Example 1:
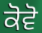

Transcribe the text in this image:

ਕੋਵੋ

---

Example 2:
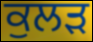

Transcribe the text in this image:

ਕੁਲੜ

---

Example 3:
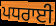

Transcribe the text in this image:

ਪਧਰਾਈ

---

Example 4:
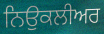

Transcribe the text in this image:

ਨਿਉਕਲੀਅਰ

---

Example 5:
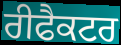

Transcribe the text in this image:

ਰੀਫੈਕਟਰ